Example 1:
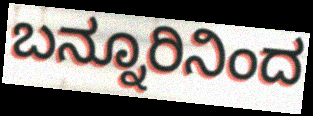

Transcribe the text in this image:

ಬನ್ನೂರಿನಿಂದ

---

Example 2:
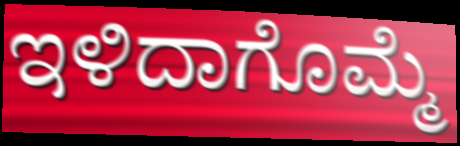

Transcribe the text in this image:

ಇಳಿದಾಗೊಮ್ಮೆ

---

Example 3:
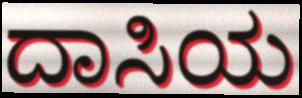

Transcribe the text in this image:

ದಾಸಿಯ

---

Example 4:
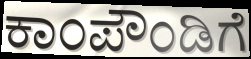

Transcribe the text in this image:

ಕಾಂಪೌಂಡಿಗೆ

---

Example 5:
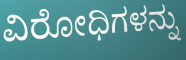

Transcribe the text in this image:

ವಿರೋಧಿಗಳನ್ನು